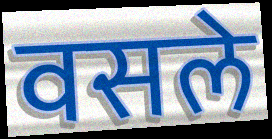
वसले